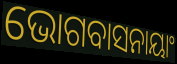
ଭୋଗବାସନାୟାଂ